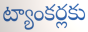
ట్యాంకర్లకు